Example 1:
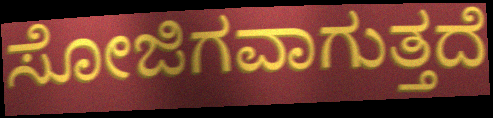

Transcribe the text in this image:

ಸೋಜಿಗವಾಗುತ್ತದೆ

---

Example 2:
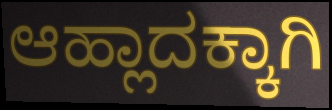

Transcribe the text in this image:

ಆಹ್ಲಾದಕ್ಕಾಗಿ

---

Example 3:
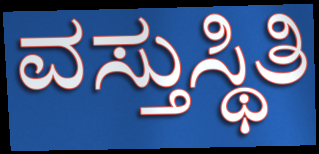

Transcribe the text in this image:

ವಸ್ತುಸ್ಥಿತಿ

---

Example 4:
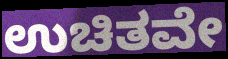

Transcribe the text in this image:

ಉಚಿತವೇ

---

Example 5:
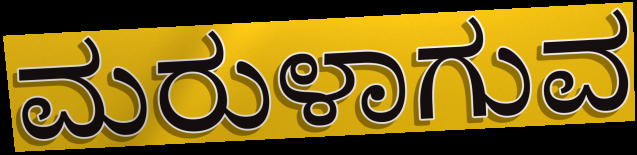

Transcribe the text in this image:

ಮರುಳಾಗುವ